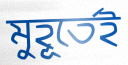
মুহূর্তেই